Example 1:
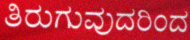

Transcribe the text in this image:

ತಿರುಗುವುದರಿಂದ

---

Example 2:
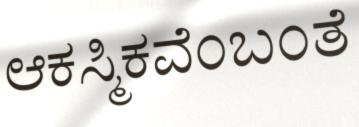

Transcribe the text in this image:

ಆಕಸ್ಮಿಕವೆಂಬಂತೆ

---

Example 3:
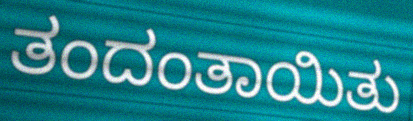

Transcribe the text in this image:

ತಂದಂತಾಯಿತು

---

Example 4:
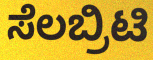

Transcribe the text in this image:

ಸೆಲಬ್ರಿಟಿ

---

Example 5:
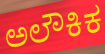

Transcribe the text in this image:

ಅಲೌಕಿಕ